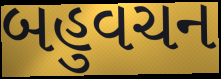
બહુવચન